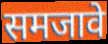
समजावे